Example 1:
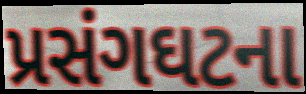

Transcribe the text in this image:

પ્રસંગઘટના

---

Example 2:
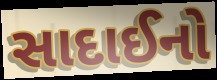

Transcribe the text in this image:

સાદાઈનો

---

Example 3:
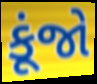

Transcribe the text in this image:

કૂંજો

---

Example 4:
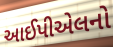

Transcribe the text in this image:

આઈપીએલનો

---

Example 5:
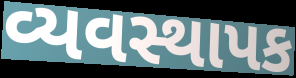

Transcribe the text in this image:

વ્યવસ્થાપક